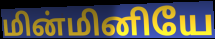
மின்மினியே